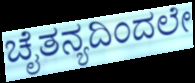
ಚೈತನ್ಯದಿಂದಲೇ